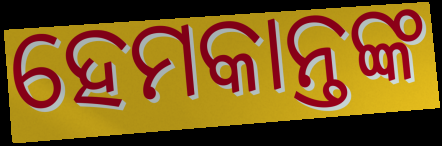
ହେମକାନ୍ତଙ୍କ